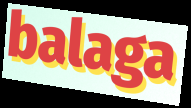
balaga